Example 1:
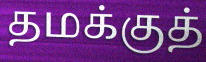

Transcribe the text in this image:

தமக்குத்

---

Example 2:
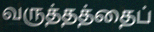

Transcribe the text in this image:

வருத்தத்தைப்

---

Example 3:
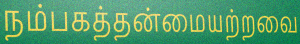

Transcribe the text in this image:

நம்பகத்தன்மையற்றவை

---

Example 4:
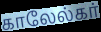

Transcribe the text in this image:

காலேல்கர்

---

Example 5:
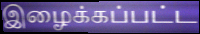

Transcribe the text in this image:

இழைக்கப்பட்ட